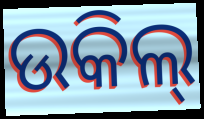
ଉକିଲ୍